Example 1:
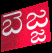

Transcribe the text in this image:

బెజ్జ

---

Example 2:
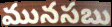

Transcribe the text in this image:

మునసబు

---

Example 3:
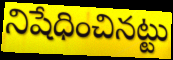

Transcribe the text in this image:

నిషేధించినట్టు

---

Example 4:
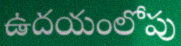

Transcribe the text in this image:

ఉదయంలోపు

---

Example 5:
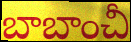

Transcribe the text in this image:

బాబాంచీ